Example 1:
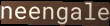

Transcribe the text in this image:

neengale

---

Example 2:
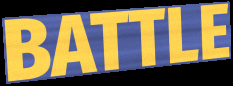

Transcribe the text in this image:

BATTLE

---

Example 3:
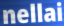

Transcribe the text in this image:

nellai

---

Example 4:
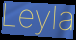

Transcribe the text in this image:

Leyla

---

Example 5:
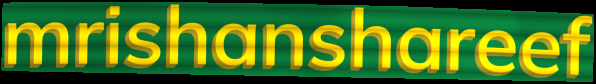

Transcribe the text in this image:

mrishanshareef